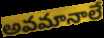
అవమానాలే